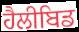
ਹੈਲੀਬਿਡ